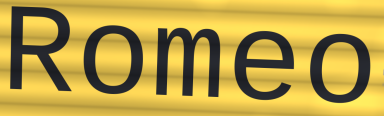
Romeo